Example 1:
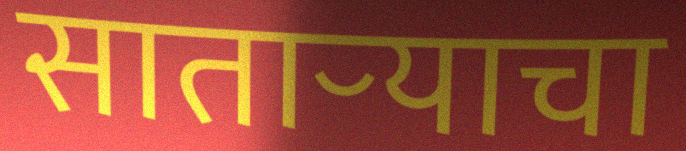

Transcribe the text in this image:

साताऱ्याचा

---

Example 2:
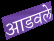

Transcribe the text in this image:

आडवले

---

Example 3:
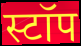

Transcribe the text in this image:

स्टॉप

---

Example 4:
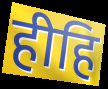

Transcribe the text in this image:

हीहि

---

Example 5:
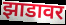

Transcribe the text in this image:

झाडावर